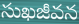
సుఖజీవన